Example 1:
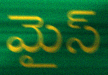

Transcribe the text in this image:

మైస్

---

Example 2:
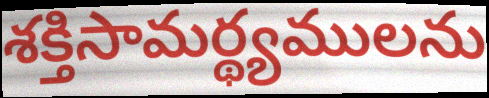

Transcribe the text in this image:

శక్తిసామర్థ్యములను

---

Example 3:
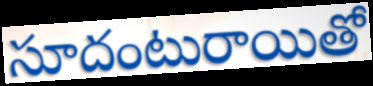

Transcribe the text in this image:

సూదంటురాయితో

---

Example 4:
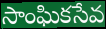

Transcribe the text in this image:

సాంఘికసేవ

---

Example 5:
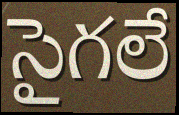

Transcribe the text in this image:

సైగలే